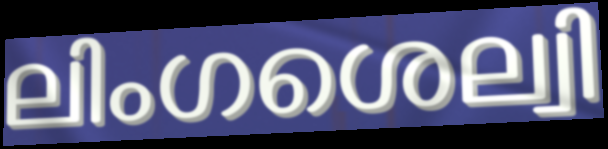
ലിംഗശെല്വി